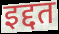
इद्दत